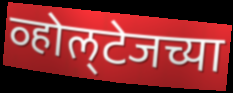
व्होल्टेजच्या